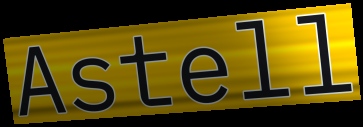
Astell